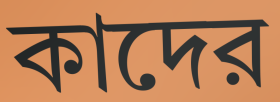
কাদের